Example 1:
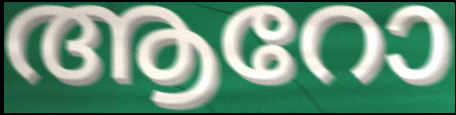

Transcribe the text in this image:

ആറോ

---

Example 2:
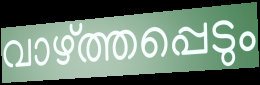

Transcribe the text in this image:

വാഴ്ത്തപ്പെടും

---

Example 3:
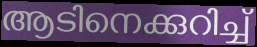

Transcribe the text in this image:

ആടിനെക്കുറിച്ച്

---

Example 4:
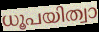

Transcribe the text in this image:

ധൂപയിത്വാ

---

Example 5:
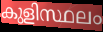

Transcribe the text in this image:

കുളിസ്ഥലം